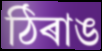
ঠিৰাঙ